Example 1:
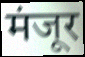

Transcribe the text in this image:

मंजूर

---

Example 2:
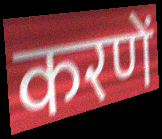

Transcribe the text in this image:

करणें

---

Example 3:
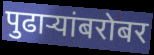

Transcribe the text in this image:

पुढाऱ्यांबरोबर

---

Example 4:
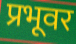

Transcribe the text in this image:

प्रभूवर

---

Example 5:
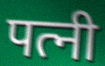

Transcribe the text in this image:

पत्‍नी